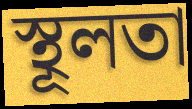
স্থূলতা